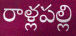
రాళ్లపల్లి